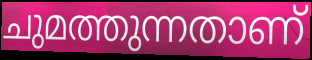
ചുമത്തുന്നതാണ്